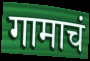
गामाचं